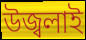
উজ্বলাই